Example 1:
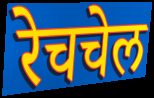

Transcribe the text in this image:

रेचचेल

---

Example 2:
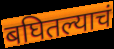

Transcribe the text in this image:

बघितल्याचं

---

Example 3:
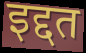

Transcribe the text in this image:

इद्दत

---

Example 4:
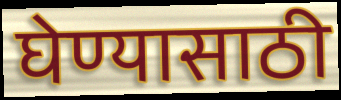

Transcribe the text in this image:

घेण्यासाठी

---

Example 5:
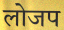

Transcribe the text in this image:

लोजप